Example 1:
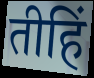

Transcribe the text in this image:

तीहिं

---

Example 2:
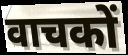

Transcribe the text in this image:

वाचकों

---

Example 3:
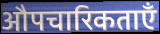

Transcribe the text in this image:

औपचारिकताएँ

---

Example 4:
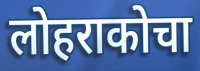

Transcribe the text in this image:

लोहराकोचा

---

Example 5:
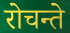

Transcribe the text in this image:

रोचन्ते